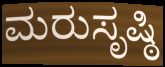
ಮರುಸೃಷ್ಠಿ